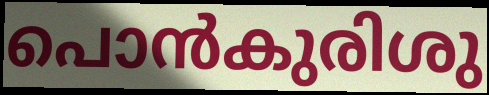
പൊൻകുരിശു